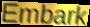
Embark